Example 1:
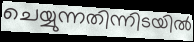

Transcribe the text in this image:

ചെയ്യുന്നതിന്നിടയിൽ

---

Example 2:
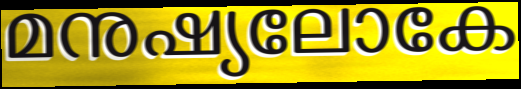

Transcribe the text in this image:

മനുഷ്യലോകേ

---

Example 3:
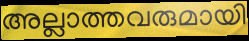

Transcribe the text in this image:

അല്ലാത്തവരുമായി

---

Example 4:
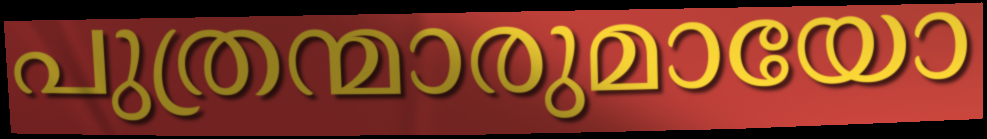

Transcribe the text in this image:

പുത്രന്മാരുമായോ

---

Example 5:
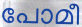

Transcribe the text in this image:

പോമീ